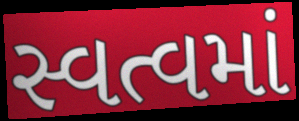
સ્વત્વમાં